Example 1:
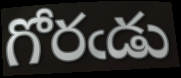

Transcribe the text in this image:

గోరఁడు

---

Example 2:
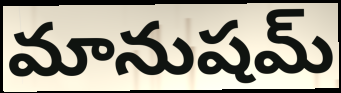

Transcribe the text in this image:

మానుషమ్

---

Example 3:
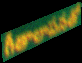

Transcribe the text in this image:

గీతాలాపనతో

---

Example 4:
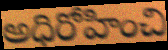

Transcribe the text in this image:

అధిరోహించి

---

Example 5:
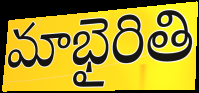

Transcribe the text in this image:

మాభైరితి